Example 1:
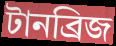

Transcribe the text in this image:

টানব্রিজ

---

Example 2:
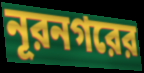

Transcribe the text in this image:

নূরনগরের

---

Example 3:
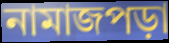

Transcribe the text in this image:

নামাজপড়া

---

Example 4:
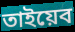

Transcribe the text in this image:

তাইয়েব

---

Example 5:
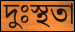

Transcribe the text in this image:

দুঃস্থতা